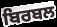
ਬਿਰਬਲ